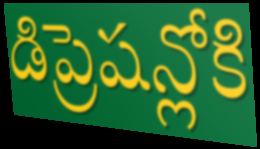
డిప్రెషన్లోకి